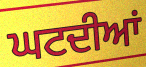
ਘਟਦੀਆਂ